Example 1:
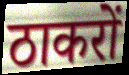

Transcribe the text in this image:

ठाकरों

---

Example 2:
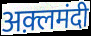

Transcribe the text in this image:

अक़्लमंदी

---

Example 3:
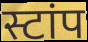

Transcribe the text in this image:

स्टांप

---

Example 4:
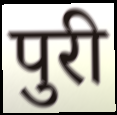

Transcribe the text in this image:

पुरी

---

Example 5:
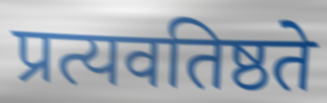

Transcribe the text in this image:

प्रत्यवतिष्ठते